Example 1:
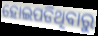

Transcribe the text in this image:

ହୋଇପଡିଥିବାରୁ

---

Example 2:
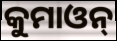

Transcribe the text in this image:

କୁମାଓନ୍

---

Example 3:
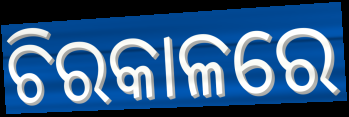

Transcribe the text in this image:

ଚିରକାଳରେ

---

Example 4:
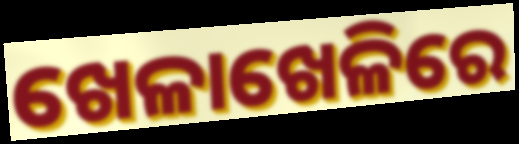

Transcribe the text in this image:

ଖେଳାଖେଳିରେ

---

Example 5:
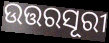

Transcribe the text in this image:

ଉତ୍ତରସୂରୀ